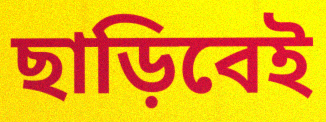
ছাড়িবেই